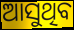
ଆସୁଥିବ